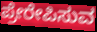
ಪ್ರೇರೇಪಿಸುವ